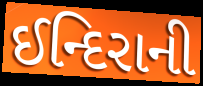
ઈન્દિરાની